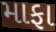
માફા